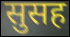
सुसह